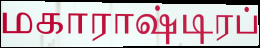
மகாராஷ்டிரப்